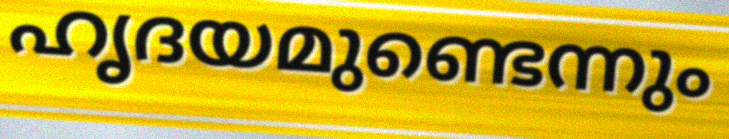
ഹൃദയമുണ്ടെന്നും